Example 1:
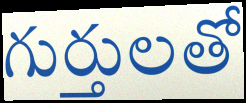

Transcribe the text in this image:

గుర్తులతో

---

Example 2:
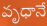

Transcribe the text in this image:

వృధానే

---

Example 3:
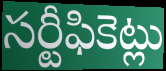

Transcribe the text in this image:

సర్టీఫికెట్లు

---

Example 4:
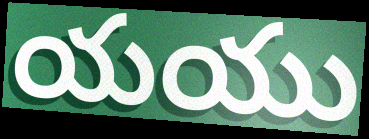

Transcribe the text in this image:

యయు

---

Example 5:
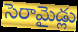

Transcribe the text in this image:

సెరామైడ్లు